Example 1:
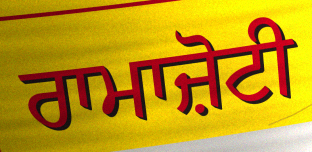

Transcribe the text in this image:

ਰਾਮਾਜ਼ੋਟੀ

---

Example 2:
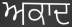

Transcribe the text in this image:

ਅਕਾਦ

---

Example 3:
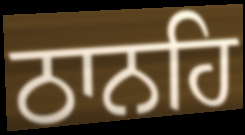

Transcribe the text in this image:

ਠਾਨਹਿ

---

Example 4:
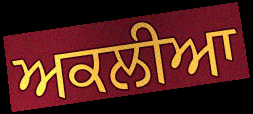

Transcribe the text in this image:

ਅਕਲੀਆ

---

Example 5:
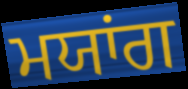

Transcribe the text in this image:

ਮਯਾਂਗ